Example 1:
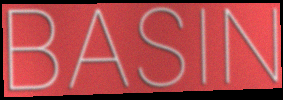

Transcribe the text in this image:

BASIN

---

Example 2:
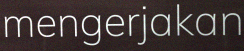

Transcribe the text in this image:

mengerjakan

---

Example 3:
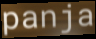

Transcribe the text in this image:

panja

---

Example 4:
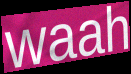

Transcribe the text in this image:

waah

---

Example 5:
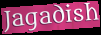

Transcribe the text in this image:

Jagadish